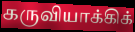
கருவியாக்கிக்